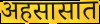
अहसासात